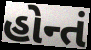
હોન્તં